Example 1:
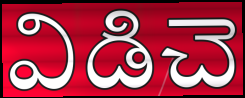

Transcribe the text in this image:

విడిచె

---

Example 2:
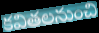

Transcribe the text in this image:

కవితలనుంచి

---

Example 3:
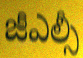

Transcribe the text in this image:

జీఎల్సీ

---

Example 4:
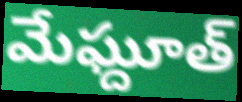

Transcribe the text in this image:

మేఘ్దూత్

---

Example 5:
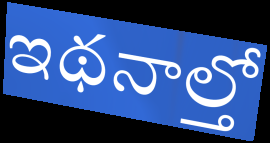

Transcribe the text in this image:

ఇథనాల్తో